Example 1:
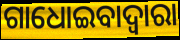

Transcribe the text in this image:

ଗାଧୋଇବାଦ୍ଵାରା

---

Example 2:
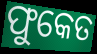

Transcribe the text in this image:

ଫୁକେତ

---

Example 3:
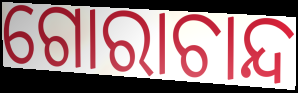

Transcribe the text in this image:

ଗୋରାଚାନ୍ଦ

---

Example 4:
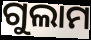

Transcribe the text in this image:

ଗୁଲାମ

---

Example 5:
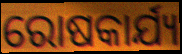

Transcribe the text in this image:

ରୋଷକାର୍ଯ୍ୟ